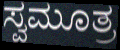
ಸ್ವಮೂತ್ರ